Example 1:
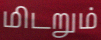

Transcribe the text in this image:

மிடறும்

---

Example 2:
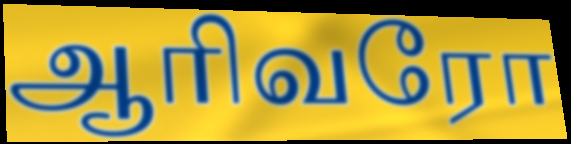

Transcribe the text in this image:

ஆரிவரோ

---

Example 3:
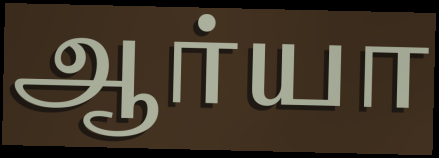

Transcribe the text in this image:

ஆர்யா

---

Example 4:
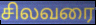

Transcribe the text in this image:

சிலவரை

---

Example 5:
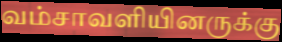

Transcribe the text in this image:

வம்சாவளியினருக்கு